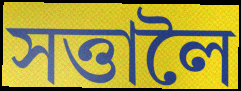
সত্তালৈ